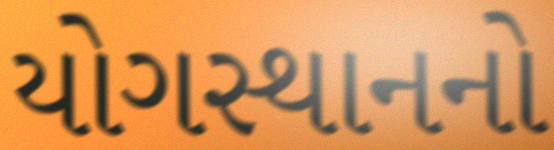
યોગસ્થાનનો